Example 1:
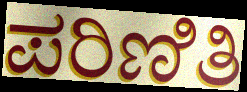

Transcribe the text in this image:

ಪರಿಣಿತಿ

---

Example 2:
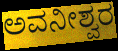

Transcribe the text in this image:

ಅವನೀಶ್ವರ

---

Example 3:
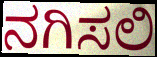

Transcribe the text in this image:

ನಗಿಸಲಿ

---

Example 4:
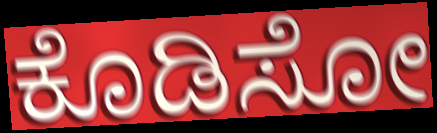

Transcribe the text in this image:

ಕೊಡಿಸೋ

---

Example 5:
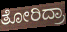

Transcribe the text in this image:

ತೋರಿದ್ರಾ